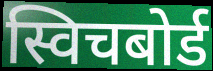
स्विचबोर्ड